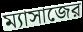
ম্যাসাজের